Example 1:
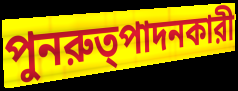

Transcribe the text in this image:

পুনরুত্পাদনকারী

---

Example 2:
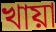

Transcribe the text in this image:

খায়া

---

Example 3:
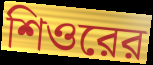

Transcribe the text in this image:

শিওরের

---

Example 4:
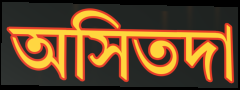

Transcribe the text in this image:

অসিতদা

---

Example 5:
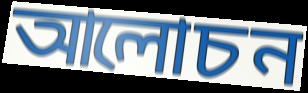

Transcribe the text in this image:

আলোচন